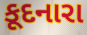
કૂદનારા